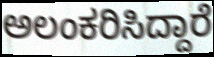
ಅಲಂಕರಿಸಿದ್ದಾರೆ